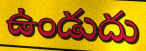
ఉండుదు